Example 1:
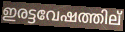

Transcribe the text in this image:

ഇരട്ടവേഷത്തില്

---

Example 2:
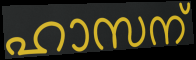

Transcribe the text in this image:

ഹാസന്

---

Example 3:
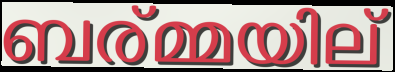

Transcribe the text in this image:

ബര്മ്മയില്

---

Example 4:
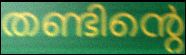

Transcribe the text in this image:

തണ്ടിന്റെ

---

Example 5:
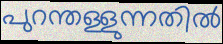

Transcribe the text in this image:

പുറന്തള്ളുന്നതിൽ